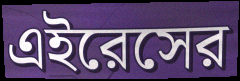
এইরেসের